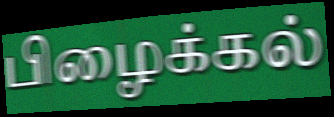
பிழைக்கல்